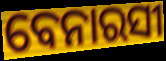
ବେନାରସୀ